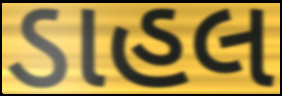
ડાહલ